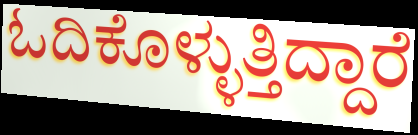
ಓದಿಕೊಳ್ಳುತ್ತಿದ್ದಾರೆ